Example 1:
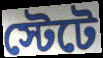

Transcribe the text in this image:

স্টেটে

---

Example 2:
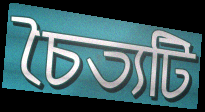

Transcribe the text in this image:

চৈত্যটি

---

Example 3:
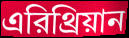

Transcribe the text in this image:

এরিথ্রিয়ান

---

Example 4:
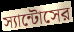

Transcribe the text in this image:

স্যান্টোসের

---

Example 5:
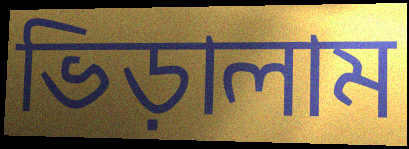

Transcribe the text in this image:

ভিড়ালাম